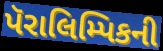
પૅરાલિમ્પિકની